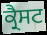
ਕ੍ਰੈਸਟ